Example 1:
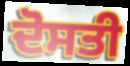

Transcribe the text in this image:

ਦੋਸਤੀ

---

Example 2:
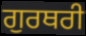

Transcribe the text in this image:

ਗੁਰਥਰੀ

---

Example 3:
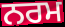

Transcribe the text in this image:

ਨਰਮ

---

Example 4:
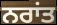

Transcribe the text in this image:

ਨਰਾਂਤ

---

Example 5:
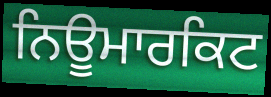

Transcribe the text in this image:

ਨਿਊਮਾਰਕਿਟ